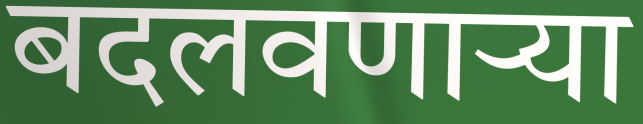
बदलवणार्‍या